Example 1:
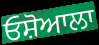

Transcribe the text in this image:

ਓਸ਼ੋਆਲਾ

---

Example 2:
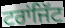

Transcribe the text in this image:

ਟਰਾਂਜਿੱਟ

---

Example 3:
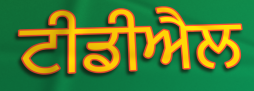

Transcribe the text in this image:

ਟੀਡੀਐਲ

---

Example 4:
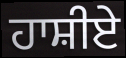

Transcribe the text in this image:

ਹਾਸ਼ੀਏ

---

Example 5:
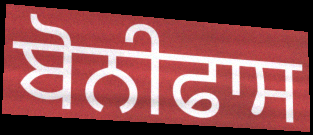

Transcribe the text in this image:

ਬੋਨੀਫਾਸ